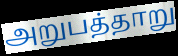
அறுபத்தாறு